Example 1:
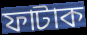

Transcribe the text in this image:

ফাটাক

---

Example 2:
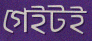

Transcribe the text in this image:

গেইটই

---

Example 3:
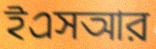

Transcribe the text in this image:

ইএসআর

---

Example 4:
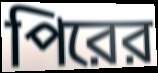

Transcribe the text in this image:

পিরের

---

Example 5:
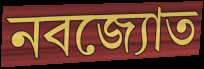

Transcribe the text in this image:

নবজ্যোত